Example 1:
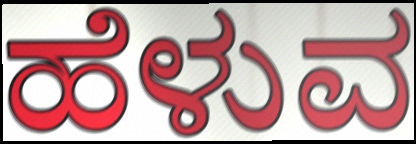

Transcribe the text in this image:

ಹೆಳುವ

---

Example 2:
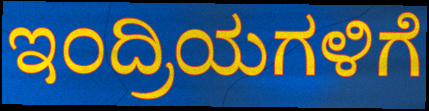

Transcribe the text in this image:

ಇಂದ್ರಿಯಗಳಿಗೆ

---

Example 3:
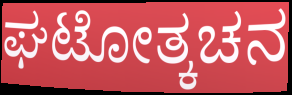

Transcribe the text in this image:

ಘಟೋತ್ಕಚನ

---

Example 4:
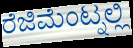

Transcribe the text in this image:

ರೆಜಿಮೆಂಟ್ನಲ್ಲಿ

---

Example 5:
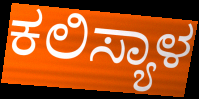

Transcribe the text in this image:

ಕಲಿಸ್ಯಾಳ